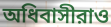
অধিবাসীরাও